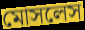
মোসলেস